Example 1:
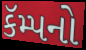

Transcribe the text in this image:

કૅમ્પનો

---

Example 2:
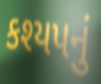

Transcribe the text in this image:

કશ્યપનું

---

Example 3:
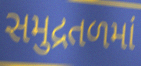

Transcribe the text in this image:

સમુદ્રતળમાં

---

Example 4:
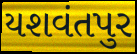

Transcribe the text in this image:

યશવંતપુર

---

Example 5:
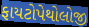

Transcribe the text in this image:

ફાયટોપેથોલોજી